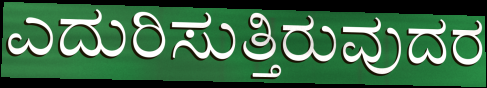
ಎದುರಿಸುತ್ತಿರುವುದರ